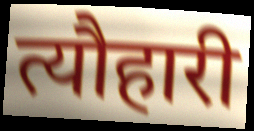
त्यौहारी